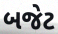
બજેટ